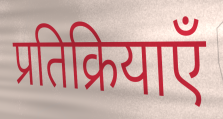
प्रतिक्रियाएँ